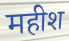
महीश